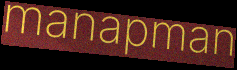
manapman